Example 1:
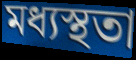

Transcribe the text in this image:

মধ্যস্থতা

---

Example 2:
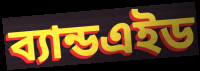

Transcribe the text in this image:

ব্যান্ডএইড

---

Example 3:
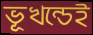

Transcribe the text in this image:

ভূখন্ডেই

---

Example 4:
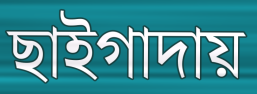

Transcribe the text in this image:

ছাইগাদায়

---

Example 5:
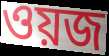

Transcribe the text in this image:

ওয়জ